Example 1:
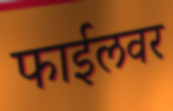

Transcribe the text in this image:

फाईलवर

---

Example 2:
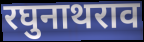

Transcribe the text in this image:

रघुनाथराव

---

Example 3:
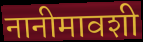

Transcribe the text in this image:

नानीमावशी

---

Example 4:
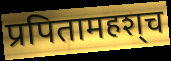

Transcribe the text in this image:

प्रपितामहश्च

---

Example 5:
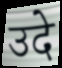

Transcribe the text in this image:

उदे